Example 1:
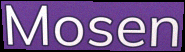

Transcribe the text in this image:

Mosen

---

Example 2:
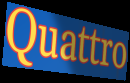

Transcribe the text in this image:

Quattro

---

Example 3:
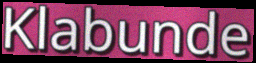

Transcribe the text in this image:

Klabunde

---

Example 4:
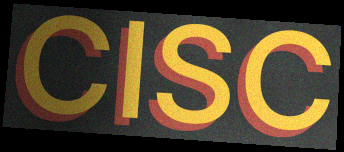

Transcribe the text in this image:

CISC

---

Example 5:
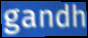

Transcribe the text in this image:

gandh